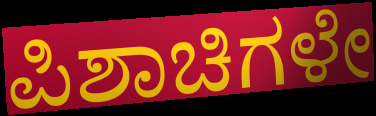
ಪಿಶಾಚಿಗಳೇ